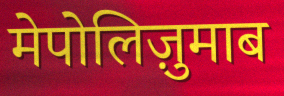
मेपोलिज़ुमाब